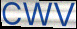
CWV